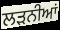
ਲੜਨੀਆਂ